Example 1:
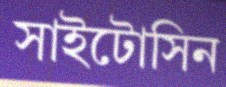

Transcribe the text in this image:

সাইটোসিন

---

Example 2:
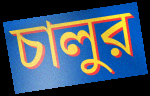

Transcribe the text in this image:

চালুর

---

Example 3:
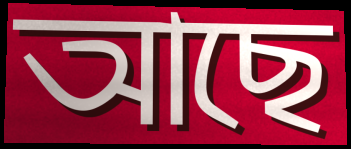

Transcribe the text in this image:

আছে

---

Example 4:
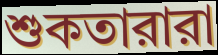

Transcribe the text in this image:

শুকতারারা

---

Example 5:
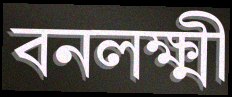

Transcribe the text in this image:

বনলক্ষ্মী